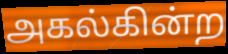
அகல்கின்ற